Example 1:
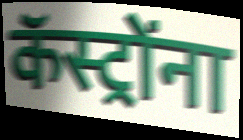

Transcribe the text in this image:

कॅस्ट्रोंना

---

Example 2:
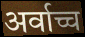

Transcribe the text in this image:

अर्वाच्च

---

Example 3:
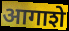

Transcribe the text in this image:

आगाशे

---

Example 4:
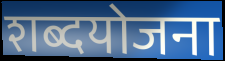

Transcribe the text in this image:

शब्दयोजना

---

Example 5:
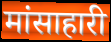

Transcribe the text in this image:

मांसाहारी